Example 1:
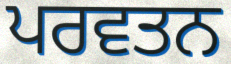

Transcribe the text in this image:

ਪਰਵਤਨ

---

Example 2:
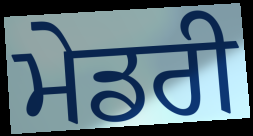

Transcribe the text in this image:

ਮੇਡਰੀ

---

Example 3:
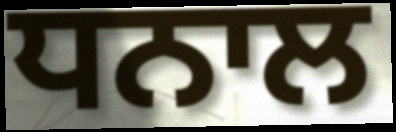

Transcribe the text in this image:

ਧਨਾਲ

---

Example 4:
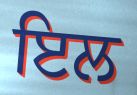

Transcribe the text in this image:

ਇਲ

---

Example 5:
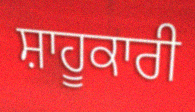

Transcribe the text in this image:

ਸ਼ਾਹੂਕਾਰੀ